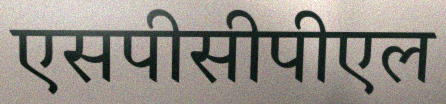
एसपीसीपीएल